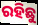
ରହିଛୁ